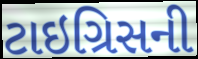
ટાઇગ્રિસની